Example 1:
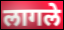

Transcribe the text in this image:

लागले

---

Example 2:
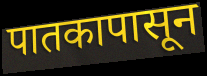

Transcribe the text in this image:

पातकापासून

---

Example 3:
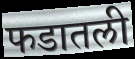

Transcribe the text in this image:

फडातली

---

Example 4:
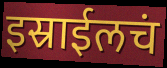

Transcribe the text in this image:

इस्राईलचं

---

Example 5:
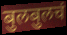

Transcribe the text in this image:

बुलबुलचं